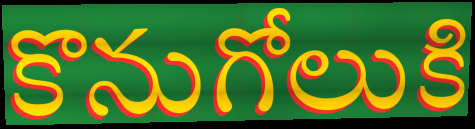
కొనుగోలుకి